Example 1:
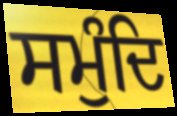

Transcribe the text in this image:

ਸਮੁੰਦਿ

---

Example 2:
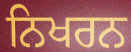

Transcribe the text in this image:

ਨਿਖਰਨ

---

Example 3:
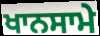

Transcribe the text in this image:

ਖਾਨਸਾਮੇ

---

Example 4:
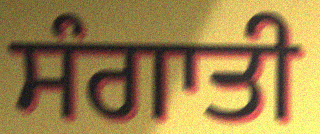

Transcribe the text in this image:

ਸੰਗਾਤੀ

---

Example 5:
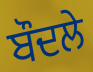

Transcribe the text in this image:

ਬੌਦਲੇ